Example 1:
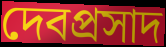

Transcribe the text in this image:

দেবপ্রসাদ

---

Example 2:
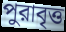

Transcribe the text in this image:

পুরাবৃত্ত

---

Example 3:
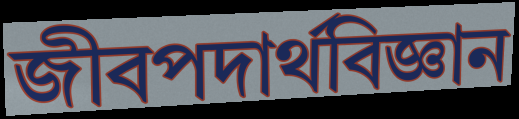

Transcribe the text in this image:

জীবপদার্থবিজ্ঞান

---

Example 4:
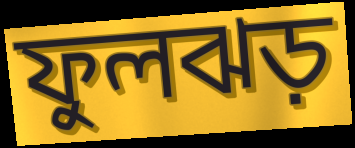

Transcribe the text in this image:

ফুলঝড়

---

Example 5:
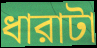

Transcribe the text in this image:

ধারাটা